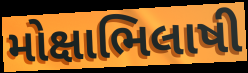
મોક્ષાભિલાષી